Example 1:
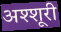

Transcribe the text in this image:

अश्‍शूरी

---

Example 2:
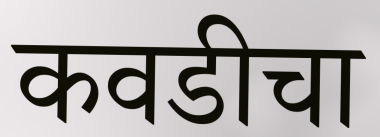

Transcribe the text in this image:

कवडीचा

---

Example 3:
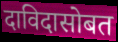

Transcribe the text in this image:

दाविदासोबत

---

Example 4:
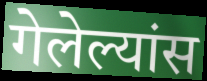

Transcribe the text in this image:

गेलेल्यांस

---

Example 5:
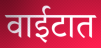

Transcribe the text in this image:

वाईटात